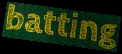
batting